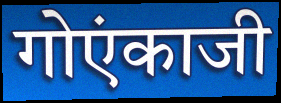
गोएंकाजी